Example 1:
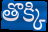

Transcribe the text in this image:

తొక్కి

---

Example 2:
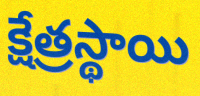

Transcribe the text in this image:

క్షేత్రస్థాయి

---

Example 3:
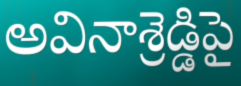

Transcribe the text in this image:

అవినాశ్రెడ్డిపై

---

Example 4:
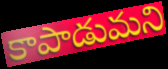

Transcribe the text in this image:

కాపాడుమని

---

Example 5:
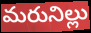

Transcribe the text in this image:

మరునిల్లు